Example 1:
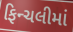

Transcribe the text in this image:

ફિન્ચલીમાં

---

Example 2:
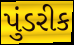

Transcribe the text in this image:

પુંડરીક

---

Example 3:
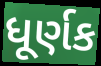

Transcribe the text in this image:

ધૂર્ણક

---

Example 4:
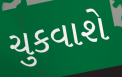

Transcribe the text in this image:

ચુકવાશે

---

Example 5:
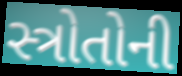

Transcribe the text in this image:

સ્ત્રોતોની